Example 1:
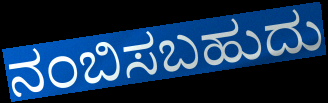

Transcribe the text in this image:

ನಂಬಿಸಬಹುದು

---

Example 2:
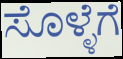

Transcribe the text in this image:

ಸೊಳ್ಳೆಗೆ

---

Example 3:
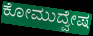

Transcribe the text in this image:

ಕೋಮುದ್ವೇಷ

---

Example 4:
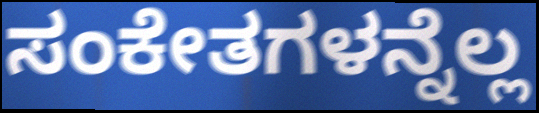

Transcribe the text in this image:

ಸಂಕೇತಗಳನ್ನೆಲ್ಲ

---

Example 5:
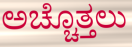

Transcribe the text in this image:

ಅಚ್ಚೊತ್ತಲು